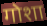
गोशा